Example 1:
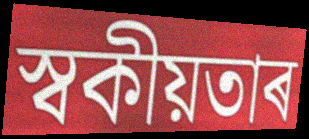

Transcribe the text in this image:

স্বকীয়তাৰ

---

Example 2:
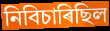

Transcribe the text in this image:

নিবিচাৰিছিল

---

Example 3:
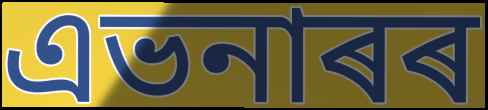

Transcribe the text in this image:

এভনাৰৰ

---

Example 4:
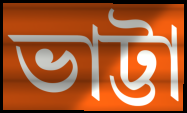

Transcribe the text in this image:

ভাট্টা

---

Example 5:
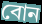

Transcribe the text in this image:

বোন